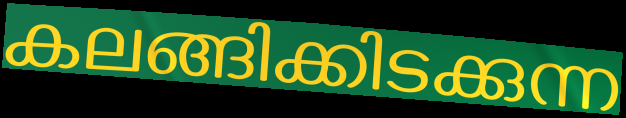
കലങ്ങിക്കിടക്കുന്ന